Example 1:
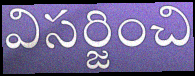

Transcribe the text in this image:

విసర్జించి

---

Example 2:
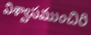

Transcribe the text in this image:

విశ్వాసముంచిరి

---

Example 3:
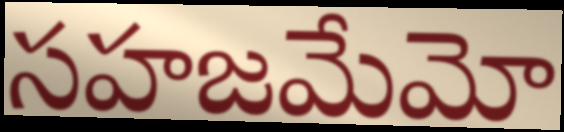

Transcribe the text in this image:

సహజమేమో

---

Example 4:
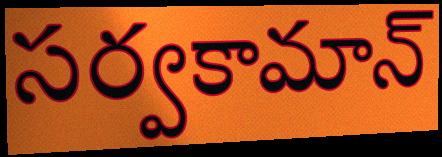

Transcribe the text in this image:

సర్వకామాన్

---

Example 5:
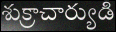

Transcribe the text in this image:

శుక్రాచార్యుడి